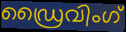
ഡ്രൈവിംഗ്